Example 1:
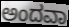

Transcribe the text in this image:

ಅಂದವಾ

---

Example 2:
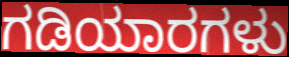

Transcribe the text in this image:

ಗಡಿಯಾರಗಳು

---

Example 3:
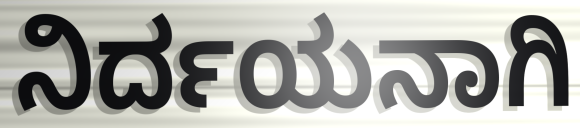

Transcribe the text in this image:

ನಿರ್ದಯನಾಗಿ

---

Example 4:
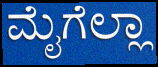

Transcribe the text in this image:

ಮೈಗೆಲ್ಲಾ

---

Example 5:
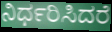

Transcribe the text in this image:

ನಿರ್ಧರಿಸಿದರೆ